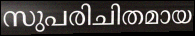
സുപരിചിതമായ